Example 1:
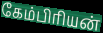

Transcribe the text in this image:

கேம்பிரியன்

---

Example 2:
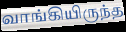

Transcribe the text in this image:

வாங்கியிருந்த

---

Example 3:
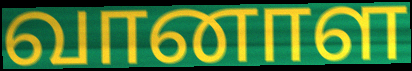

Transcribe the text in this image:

வானாள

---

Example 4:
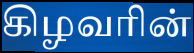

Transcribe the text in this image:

கிழவரின்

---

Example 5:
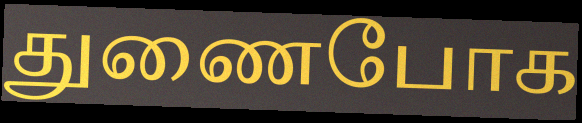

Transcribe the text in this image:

துணைபோக